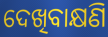
ଦେଖିବାକ୍ଷଣି